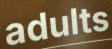
adults